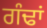
ਗੰਢਾਂ